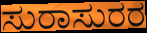
ಸುರಾಸುರರ